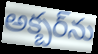
అక్బర్‌ను